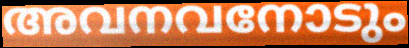
അവനവനോടും